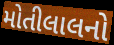
મોતીલાલનો